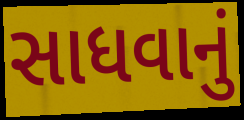
સાધવાનું